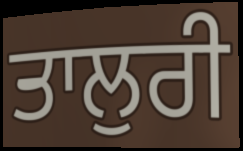
ਤਾਲੁਰੀ